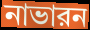
নাভারন